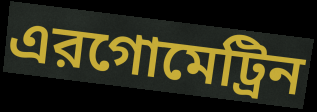
এরগোমেট্রিন